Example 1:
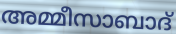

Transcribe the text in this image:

അമ്മീസാബാദ്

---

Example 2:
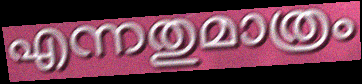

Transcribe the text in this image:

എന്നതുമാത്രം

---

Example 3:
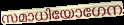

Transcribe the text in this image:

സമാധിയോഗേന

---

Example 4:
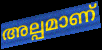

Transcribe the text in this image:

അല്പമാണ്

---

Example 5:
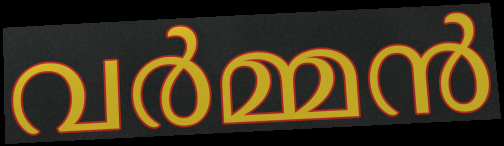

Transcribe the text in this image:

വർമ്മൻ